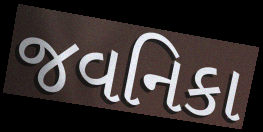
જવનિકા